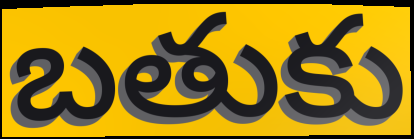
బతుకు